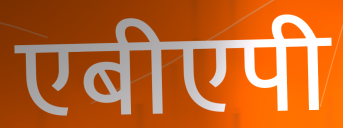
एबीएपी